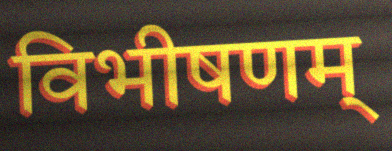
विभीषणम्